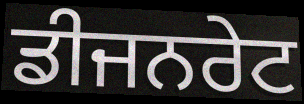
ਡੀਜਨਰੇਟ